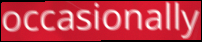
occasionally